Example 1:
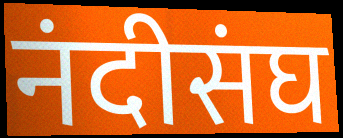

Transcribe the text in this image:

नंदीसंघ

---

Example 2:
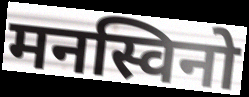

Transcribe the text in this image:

मनस्विनो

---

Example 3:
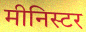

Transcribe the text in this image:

मीनिस्टर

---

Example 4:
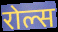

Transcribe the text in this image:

रोल्स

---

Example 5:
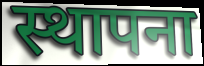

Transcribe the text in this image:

स्‍थापना